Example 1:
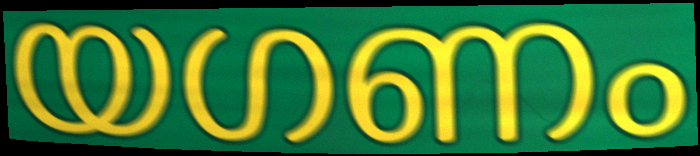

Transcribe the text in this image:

യഗണം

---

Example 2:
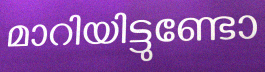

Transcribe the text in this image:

മാറിയിട്ടുണ്ടോ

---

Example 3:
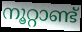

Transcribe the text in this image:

നൂറ്റാണ്ട്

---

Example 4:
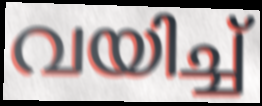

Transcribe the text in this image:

വയിച്ച്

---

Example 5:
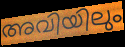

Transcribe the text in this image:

അവിയിലും